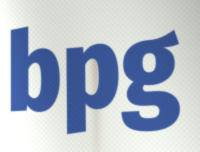
bpg